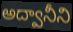
అద్వానీని